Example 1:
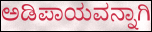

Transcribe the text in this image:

ಅಡಿಪಾಯವನ್ನಾಗಿ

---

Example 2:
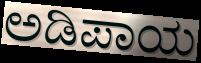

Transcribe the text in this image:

ಅಡಿಪಾಯ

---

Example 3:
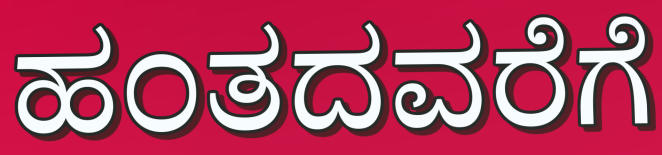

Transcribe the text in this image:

ಹಂತದವರೆಗೆ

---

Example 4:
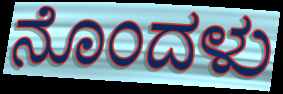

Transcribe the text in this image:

ನೊಂದಳು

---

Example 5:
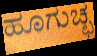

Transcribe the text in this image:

ಹೂಗುಚ್ಛ